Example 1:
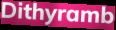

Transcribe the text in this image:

Dithyramb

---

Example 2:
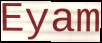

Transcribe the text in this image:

Eyam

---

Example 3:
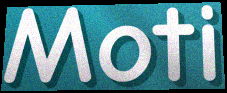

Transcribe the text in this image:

Moti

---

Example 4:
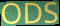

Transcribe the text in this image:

ODS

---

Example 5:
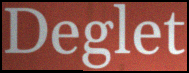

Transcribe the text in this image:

Deglet